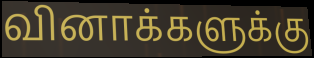
வினாக்களுக்கு